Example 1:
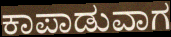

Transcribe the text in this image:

ಕಾಪಾಡುವಾಗ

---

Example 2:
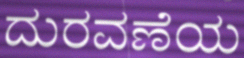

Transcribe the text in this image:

ದುರವಣೆಯ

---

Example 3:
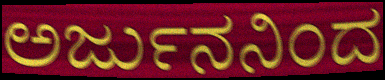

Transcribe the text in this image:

ಅರ್ಜುನನಿಂದ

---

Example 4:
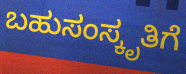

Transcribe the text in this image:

ಬಹುಸಂಸ್ಕೃತಿಗೆ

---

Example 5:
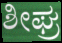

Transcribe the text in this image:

ಶೀಘ್ರ